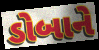
ડોબાને